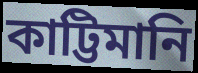
কাট্টিমানি